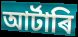
আৰ্টাৰি